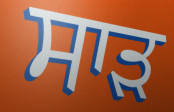
ਸਾਡ਼